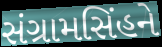
સંગ્રામસિંહને